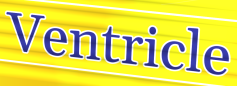
Ventricle